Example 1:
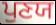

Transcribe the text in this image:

ਪੁਣਯ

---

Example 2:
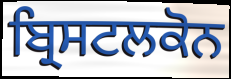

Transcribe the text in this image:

ਬ੍ਰਿਸਟਲਕੋਨ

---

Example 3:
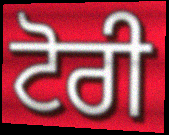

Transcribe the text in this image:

ਟੋਰੀ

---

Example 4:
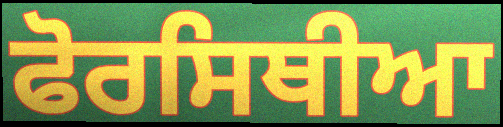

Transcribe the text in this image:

ਫੋਰਸਿਥੀਆ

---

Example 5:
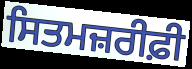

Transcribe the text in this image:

ਸਿਤਮਜ਼ਰੀਫ਼ੀ